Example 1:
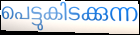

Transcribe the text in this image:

പെട്ടുകിടക്കുന്ന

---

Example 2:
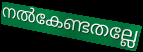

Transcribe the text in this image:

നൽകേണ്ടതല്ലേ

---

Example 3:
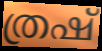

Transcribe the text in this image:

ത്രഷ്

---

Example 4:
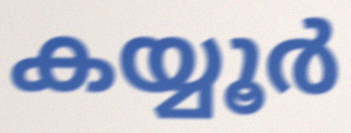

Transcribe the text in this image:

കയ്യൂർ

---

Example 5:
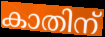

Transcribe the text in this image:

കാതിന്